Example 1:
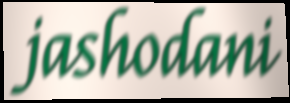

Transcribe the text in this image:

jashodani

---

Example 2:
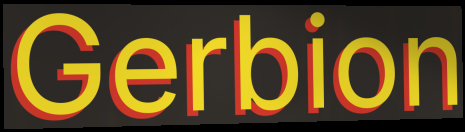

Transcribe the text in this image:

Gerbion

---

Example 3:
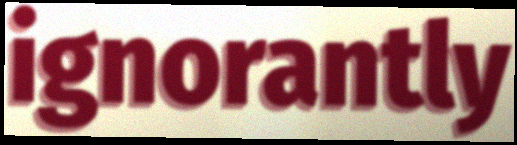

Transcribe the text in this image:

ignorantly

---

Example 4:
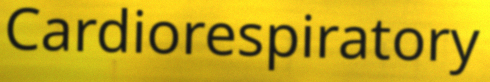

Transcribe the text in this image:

Cardiorespiratory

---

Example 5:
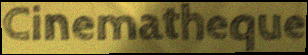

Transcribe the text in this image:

Cinematheque